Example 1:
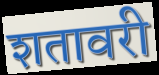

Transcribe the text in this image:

शतावरी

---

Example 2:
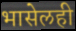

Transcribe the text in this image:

भासेलही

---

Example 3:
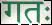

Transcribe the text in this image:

गतः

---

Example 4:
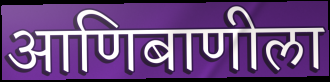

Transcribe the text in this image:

आणिबाणीला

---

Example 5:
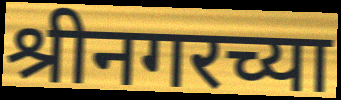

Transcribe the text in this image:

श्रीनगरच्या